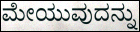
ಮೇಯುವುದನ್ನು